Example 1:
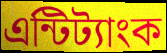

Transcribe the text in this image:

এন্টিট্যাংক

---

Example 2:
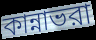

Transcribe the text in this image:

কান্নাভরা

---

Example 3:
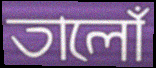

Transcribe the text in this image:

তালোঁ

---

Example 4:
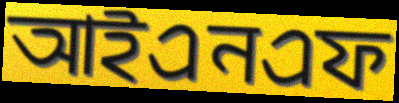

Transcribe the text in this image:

আইএনএফ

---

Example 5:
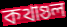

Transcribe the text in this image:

কথাগুল